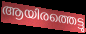
ആയിരത്തെട്ടു